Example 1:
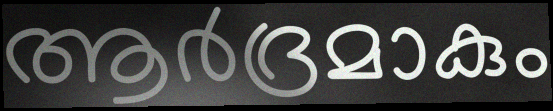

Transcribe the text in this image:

ആർദ്രമാകും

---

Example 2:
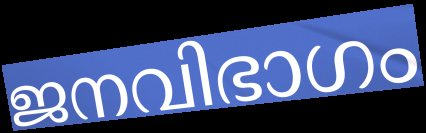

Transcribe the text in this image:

ജനവിഭാഗം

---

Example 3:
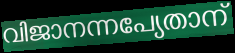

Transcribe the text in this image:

വിജാനന്നപ്യേതാന്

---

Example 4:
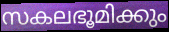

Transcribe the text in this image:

സകലഭൂമിക്കും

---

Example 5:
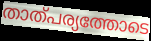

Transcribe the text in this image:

താത്പര്യത്തോടെ